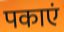
पकाएं